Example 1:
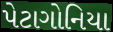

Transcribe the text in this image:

પેટાગોનિયા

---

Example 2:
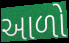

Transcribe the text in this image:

આળો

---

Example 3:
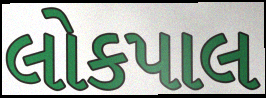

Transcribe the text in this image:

લોકપાલ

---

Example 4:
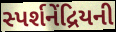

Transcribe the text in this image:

સ્પર્શનેંદ્રિયની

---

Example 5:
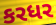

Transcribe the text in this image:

કરધર